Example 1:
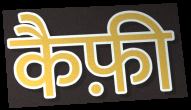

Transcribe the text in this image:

कैफ़ी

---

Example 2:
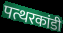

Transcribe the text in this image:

पत्थरकांडी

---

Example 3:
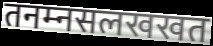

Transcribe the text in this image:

तनम्नसलखखत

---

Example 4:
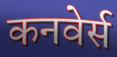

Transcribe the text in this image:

कनवेर्स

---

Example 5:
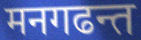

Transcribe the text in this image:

मनगढन्त